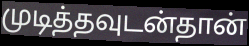
முடித்தவுடன்தான்